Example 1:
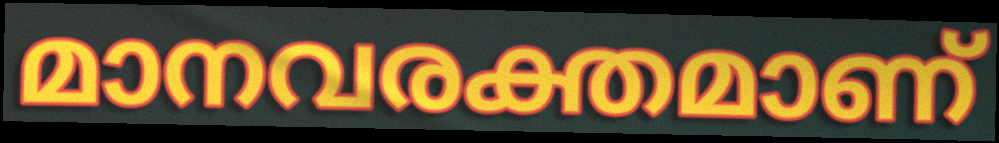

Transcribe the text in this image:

മാനവരക്തമാണ്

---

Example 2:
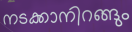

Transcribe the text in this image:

നടക്കാനിറങ്ങും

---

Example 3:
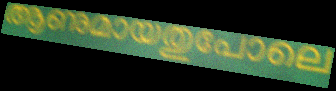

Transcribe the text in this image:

ആണുമായതുപോലെ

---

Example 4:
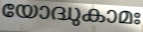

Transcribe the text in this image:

യോദ്ധുകാമഃ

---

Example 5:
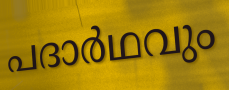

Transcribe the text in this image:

പദാർഥവും